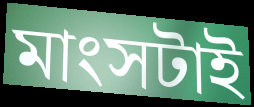
মাংসটাই